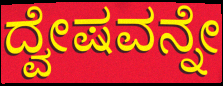
ದ್ವೇಷವನ್ನೇ